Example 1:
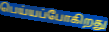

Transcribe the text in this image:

பெய்யப்போகிறது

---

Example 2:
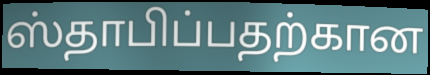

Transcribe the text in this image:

ஸ்தாபிப்பதற்கான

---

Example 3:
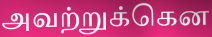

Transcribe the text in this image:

அவற்றுக்கென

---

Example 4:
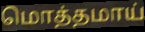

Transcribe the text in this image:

மொத்தமாய்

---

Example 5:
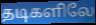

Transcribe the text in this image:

தடிகளிலே